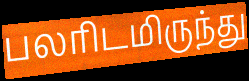
பலரிடமிருந்து